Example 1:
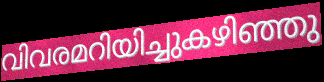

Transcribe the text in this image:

വിവരമറിയിച്ചുകഴിഞ്ഞു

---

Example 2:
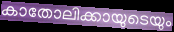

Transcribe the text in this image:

കാതോലിക്കായുടെയും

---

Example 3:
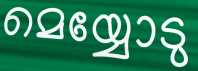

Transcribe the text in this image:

മെയ്യോടു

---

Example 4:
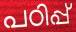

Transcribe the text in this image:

പഠിപ്പ്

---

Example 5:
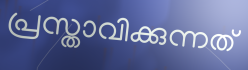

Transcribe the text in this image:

പ്രസ്താവിക്കുന്നത്